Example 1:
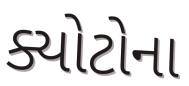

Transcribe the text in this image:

ક્યોટોના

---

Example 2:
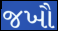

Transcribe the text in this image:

જખૌ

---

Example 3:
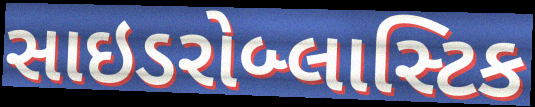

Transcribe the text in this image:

સાઇડરોબ્લાસ્ટિક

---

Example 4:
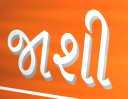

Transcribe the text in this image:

જાશી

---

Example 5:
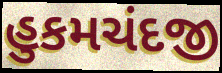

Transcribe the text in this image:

હુકમચંદજી